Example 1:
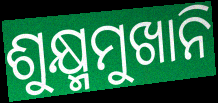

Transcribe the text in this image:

ଶୁକ୍ଷ୍ମମୁଖାନି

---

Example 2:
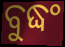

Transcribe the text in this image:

ବୁଦ୍ଧଂ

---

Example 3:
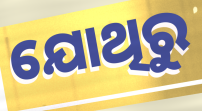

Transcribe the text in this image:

ଯୋଥିରୁ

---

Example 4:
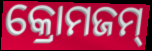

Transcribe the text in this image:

କ୍ରୋମଜମ୍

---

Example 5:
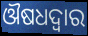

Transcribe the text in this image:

ଔଷଧଦ୍ୱାର